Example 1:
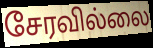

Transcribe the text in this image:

சேரவில்லை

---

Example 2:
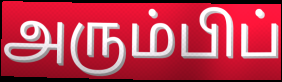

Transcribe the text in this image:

அரும்பிப்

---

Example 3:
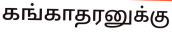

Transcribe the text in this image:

கங்காதரனுக்கு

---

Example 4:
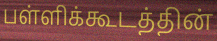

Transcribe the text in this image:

பள்ளிக்கூடத்தின்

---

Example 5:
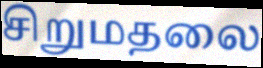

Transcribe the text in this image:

சிறுமதலை